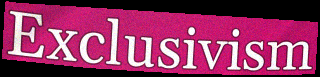
Exclusivism